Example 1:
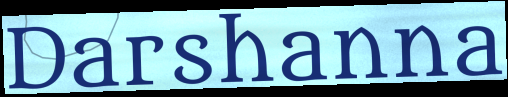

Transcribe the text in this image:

Darshanna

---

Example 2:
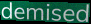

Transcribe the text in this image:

demised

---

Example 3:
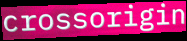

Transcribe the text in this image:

crossorigin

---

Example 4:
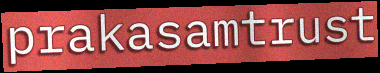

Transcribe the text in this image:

prakasamtrust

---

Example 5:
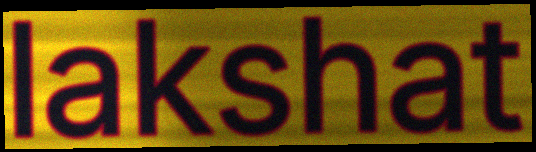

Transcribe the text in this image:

lakshat